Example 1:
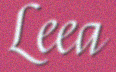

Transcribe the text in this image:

Leea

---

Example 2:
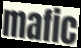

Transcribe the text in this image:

mafic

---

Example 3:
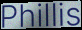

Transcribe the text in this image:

Phillis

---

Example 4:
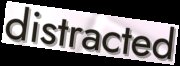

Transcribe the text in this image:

distracted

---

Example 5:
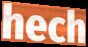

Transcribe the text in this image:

hech